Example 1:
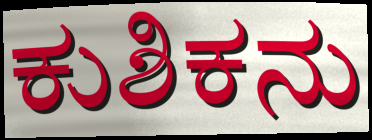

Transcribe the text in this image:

ಕುಶಿಕನು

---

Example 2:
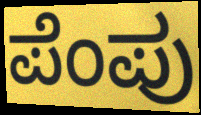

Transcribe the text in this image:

ಪೆಂಪು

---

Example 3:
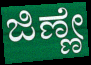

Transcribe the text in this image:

ಜಿಣ್ಣೇ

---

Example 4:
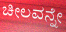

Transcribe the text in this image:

ಚೀಲವನ್ನೇ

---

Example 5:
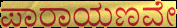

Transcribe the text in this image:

ಪಾರಾಯಣವೇ